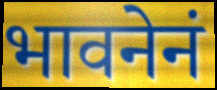
भावनेनं